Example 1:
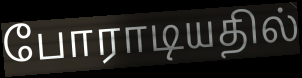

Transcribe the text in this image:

போராடியதில்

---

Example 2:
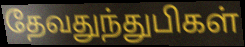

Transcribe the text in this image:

தேவதுந்துபிகள்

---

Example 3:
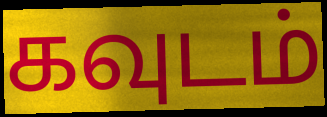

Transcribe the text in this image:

கவுடம்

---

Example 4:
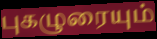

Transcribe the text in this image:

புகழுரையும்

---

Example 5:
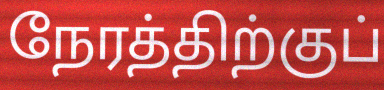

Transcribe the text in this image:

நேரத்திற்குப்